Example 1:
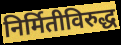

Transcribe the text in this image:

निर्मितीविरुद्ध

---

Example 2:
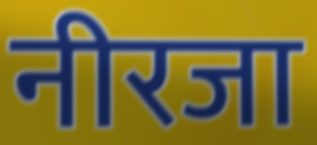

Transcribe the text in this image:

नीरजा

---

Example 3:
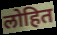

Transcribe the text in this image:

लोहित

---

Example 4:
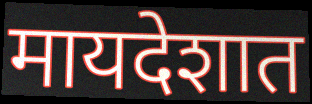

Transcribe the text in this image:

मायदेशात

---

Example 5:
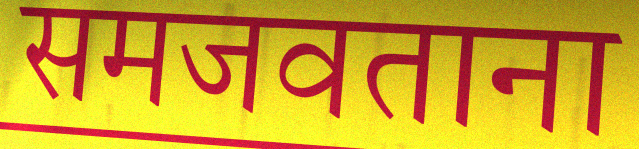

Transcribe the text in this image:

समजवताना